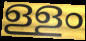
ള്ളം